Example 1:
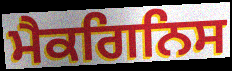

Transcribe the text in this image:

ਮੈਕਗਿਨਿਸ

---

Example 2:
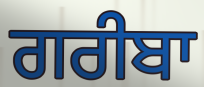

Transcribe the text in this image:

ਗਰੀਬਾ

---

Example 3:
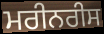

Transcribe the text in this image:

ਮਰੀਨਰੀਸ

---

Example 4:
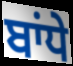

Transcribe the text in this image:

ਬਾਂਧੇ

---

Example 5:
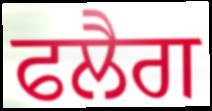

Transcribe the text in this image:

ਫਲੈਗ